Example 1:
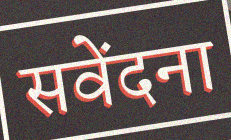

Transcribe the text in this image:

सवेंदना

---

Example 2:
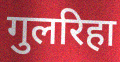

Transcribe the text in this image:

गुलरिहा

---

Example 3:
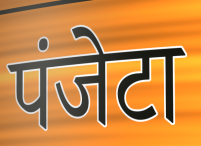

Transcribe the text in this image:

पंजेटा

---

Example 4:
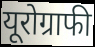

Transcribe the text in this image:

यूरोग्राफी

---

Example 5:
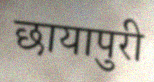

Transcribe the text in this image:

छायापुरी